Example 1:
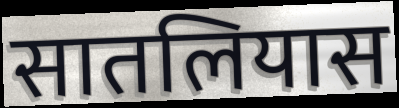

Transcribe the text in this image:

सातलियास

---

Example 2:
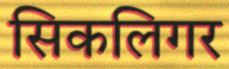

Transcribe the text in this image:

सिकलिगर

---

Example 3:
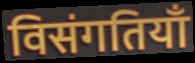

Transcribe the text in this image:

विसंगतियाँ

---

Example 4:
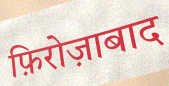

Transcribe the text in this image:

फ़िरोज़ाबाद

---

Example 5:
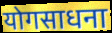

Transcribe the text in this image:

योगसाधना